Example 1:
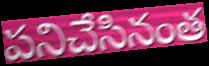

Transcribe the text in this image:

పనిచేసినంత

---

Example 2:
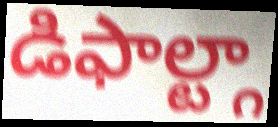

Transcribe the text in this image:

డిఫాల్ట్గా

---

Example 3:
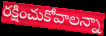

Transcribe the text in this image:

రక్షించుకోవాలన్నా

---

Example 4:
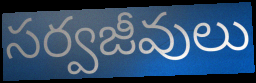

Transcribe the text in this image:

సర్వజీవులు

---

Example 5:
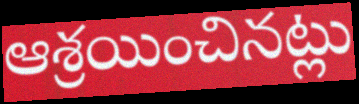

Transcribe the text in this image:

ఆశ్రయించినట్లు